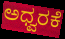
ಅಧ್ವರಕೆ